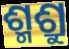
ଶ୍ମଶ୍ରୁ